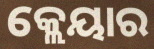
କ୍ଲେୟାର